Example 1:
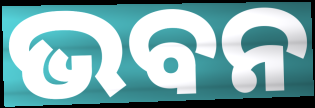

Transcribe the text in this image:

ଭବନ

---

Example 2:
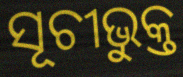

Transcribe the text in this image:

ସୂଚୀଭୁକ୍ତ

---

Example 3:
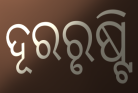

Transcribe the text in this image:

ଦୂରରୃଷ୍ଟି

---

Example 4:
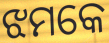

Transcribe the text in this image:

ଝମକେ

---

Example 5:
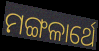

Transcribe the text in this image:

ମଙ୍ଗଳାର୍ଥେ